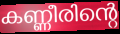
കണ്ണീരിന്റെ